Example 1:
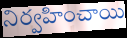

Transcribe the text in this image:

నిర్వహించాయి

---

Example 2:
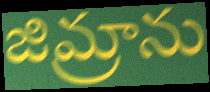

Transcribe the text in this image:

జిమ్రాను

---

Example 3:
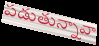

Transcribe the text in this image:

పడుతున్నావా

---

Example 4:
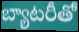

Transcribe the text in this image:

బ్యాటరీతో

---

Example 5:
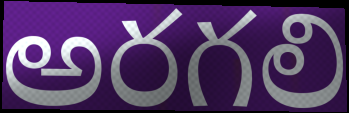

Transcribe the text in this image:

అరగలి